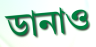
ডানাও